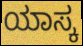
ಯಾಸ್ಕ